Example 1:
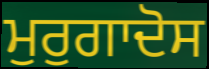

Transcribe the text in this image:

ਮੁਰੁਗਾਦੋਸ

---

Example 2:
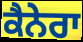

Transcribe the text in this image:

ਕੈਨੇਰਾ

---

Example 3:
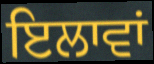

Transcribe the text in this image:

ਇਲਾਵਾਂ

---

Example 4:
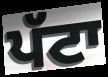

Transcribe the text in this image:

ਪੱਟਾ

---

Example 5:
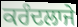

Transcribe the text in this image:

ਕਰੰਦਲਾਜੇ